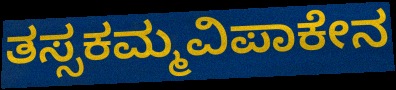
ತಸ್ಸಕಮ್ಮವಿಪಾಕೇನ